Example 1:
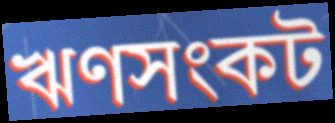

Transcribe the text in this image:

ঋণসংকট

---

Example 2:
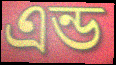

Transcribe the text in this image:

এন্ড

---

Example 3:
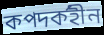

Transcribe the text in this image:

কপদর্কহীন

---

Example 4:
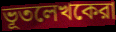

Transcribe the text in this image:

ভূতলেখকেরা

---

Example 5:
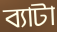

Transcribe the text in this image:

ব্যাটা